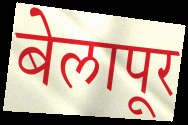
बेलापूर